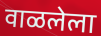
वाळलेला